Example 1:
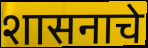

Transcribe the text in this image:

शासनाचे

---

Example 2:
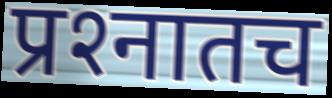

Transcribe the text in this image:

प्रश्नातच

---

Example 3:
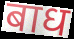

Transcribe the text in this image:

बाध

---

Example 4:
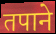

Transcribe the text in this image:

तपाने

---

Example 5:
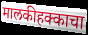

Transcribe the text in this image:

मालकीहक्काचा